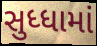
સુધ્ધામાં